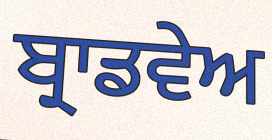
ਬ੍ਰਾਡਵੇਅ